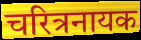
चरित्रनायक